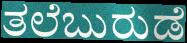
ತಲೆಬುರುಡೆ